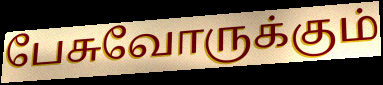
பேசுவோருக்கும்